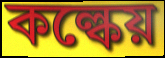
কল্কেয়